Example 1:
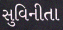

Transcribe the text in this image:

સુવિનીતા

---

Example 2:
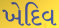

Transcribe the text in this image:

ખેદિવ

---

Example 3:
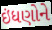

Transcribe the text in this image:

ઇંધણોને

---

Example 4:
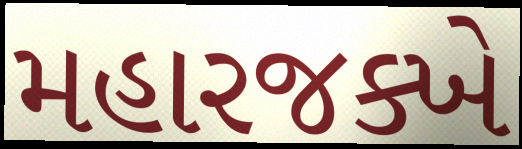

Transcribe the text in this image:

મહારજક્ખે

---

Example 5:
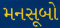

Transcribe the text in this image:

મનસૂબો